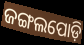
ଜଙ୍ଗଲପୋଡ଼ି